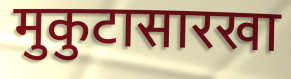
मुकुटासारखा